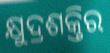
କ୍ଷୁଦ୍ରଶକ୍ତିର